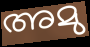
അമു